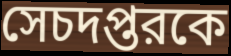
সেচদপ্তরকে